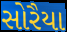
સોરૈયા